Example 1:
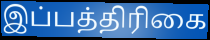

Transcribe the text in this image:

இப்பத்திரிகை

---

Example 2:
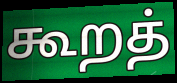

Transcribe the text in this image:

கூறத்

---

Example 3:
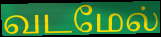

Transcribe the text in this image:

வடமேல்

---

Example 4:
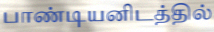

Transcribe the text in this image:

பாண்டியனிடத்தில்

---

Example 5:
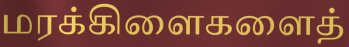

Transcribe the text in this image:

மரக்கிளைகளைத்